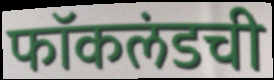
फॉकलंडची